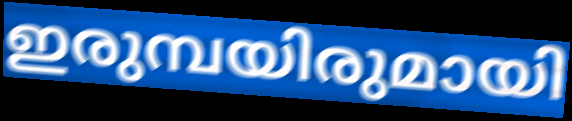
ഇരുമ്പയിരുമായി